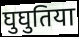
घुघुतिया